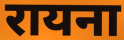
रायना